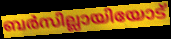
ബർസില്ലായിയോട്